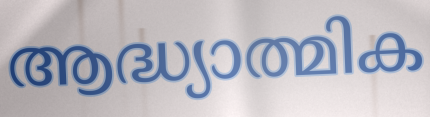
ആദ്ധ്യാത്മിക